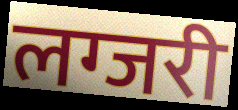
लग्जरी